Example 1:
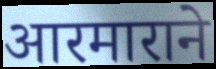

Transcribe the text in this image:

आरमाराने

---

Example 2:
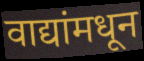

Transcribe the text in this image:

वाद्यांमधून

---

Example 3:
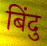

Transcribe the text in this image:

बिंदु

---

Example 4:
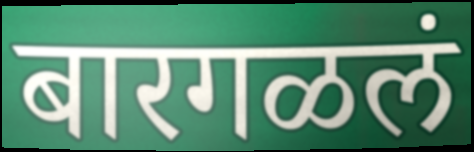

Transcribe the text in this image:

बारगळलं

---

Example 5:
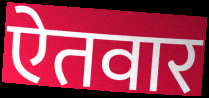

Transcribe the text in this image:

ऐतवार